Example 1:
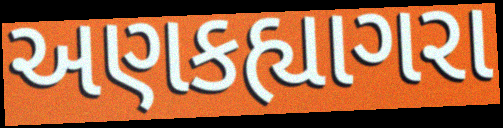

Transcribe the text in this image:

અણકહ્યાગરા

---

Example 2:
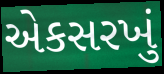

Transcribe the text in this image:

એકસરખું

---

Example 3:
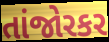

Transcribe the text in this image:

તાંજોરકર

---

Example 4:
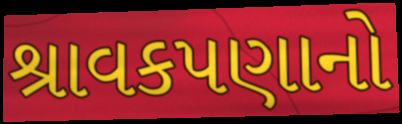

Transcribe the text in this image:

શ્રાવકપણાનો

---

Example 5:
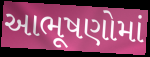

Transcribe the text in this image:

આભૂષણોમાં